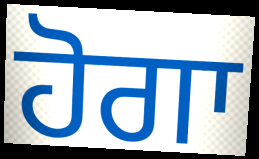
ਹੋਗਾ